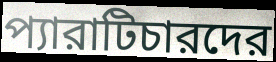
প্যারাটিচারদের